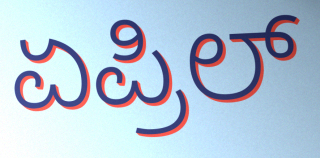
ಏಪ್ರಿಲ್